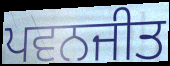
ਪਵਨਜੀਤ